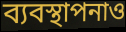
ব্যবস্থাপনাও